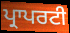
ਪ੍ਰਾਪਰਟੀ